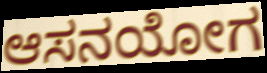
ಆಸನಯೋಗ